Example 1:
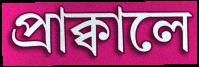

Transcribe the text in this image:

প্রাক্বালে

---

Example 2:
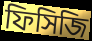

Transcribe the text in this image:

ফিসিজি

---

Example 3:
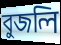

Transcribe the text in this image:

বুজলি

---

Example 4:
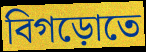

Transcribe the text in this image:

বিগড়োতে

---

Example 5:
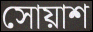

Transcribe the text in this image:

সোয়াশ